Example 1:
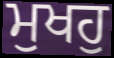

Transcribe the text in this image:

ਮੁਖਹੁ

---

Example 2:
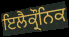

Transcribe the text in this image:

ਇਲੈਕ੍ਰੌਨਿਕ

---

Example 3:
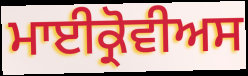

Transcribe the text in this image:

ਮਾਈਕ੍ਰੋਵੀਅਸ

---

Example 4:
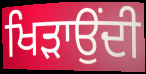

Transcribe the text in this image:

ਖਿੜਾਉਂਦੀ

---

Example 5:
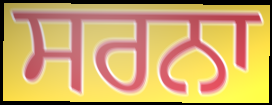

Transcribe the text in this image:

ਸਰਨਾ